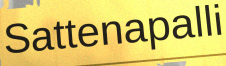
Sattenapalli